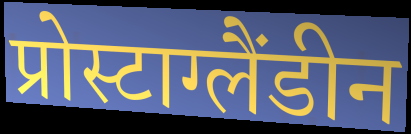
प्रोस्टाग्लैंडीन